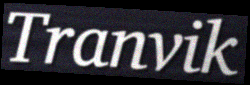
Tranvik